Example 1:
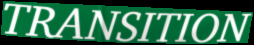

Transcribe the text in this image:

TRANSITION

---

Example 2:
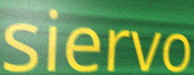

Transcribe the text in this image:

siervo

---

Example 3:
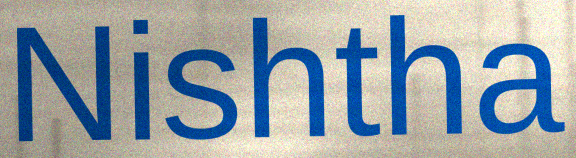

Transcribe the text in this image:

Nishtha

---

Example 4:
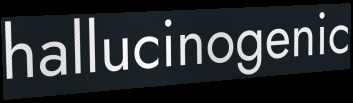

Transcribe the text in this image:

hallucinogenic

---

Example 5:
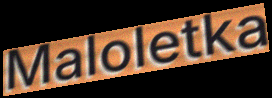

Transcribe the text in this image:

Maloletka